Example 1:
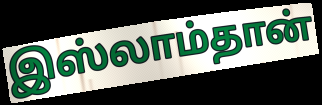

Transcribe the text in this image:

இஸ்லாம்தான்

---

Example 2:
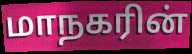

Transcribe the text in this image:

மாநகரின்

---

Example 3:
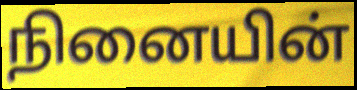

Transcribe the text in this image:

நினையின்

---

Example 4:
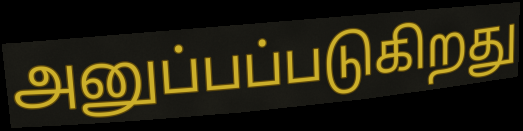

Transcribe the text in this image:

அனுப்பப்படுகிறது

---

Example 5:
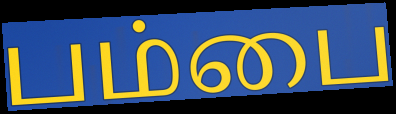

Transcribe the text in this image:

பம்பை